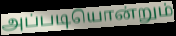
அப்படியொன்றும்